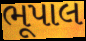
ભૂપાલ